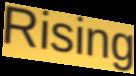
Rising